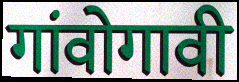
गांवोगावी